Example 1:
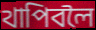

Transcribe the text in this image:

থাপিবলৈ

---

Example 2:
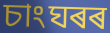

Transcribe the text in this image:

চাংঘৰৰ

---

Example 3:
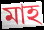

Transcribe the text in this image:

মাহ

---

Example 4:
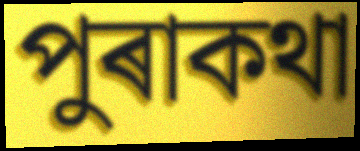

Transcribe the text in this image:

পুৰাকথা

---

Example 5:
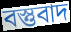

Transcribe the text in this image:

বস্তুবাদ